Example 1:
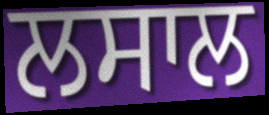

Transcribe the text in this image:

ਲਸਾਲ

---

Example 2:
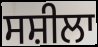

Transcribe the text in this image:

ਸਸ਼ੀਲਾ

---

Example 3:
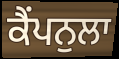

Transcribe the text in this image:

ਕੈਂਪਨੁਲਾ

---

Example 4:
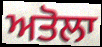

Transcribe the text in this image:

ਅਤੋਲਾ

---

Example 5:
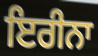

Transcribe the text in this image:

ਇਰੀਨਾ